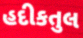
હદીકતુલ